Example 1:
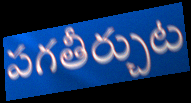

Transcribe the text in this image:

పగతీర్చుట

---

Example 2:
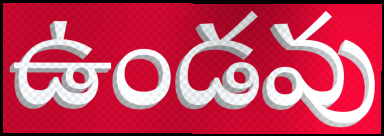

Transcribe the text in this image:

ఉండవు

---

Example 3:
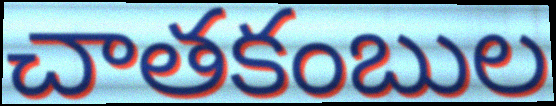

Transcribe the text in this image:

చాతకంబుల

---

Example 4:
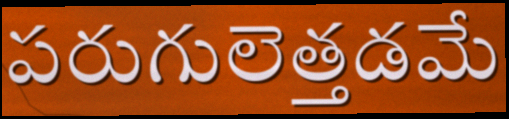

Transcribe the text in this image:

పరుగులెత్తడమే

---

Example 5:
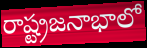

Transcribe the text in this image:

రాష్ట్రజనాభాలో